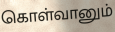
கொள்வானும்